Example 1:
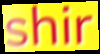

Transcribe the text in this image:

shir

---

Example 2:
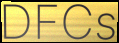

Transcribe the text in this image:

DFCs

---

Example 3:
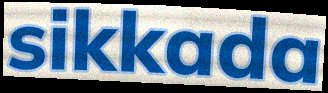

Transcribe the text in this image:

sikkada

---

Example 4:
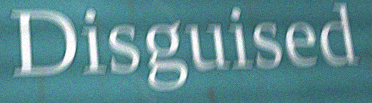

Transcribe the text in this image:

Disguised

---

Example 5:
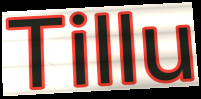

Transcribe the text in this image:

Tillu